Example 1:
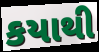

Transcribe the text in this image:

કયાથી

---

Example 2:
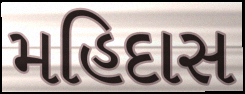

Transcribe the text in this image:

મહિદાસ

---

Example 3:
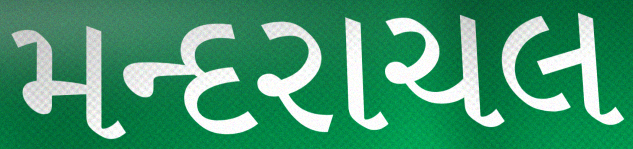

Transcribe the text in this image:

મન્દરાચલ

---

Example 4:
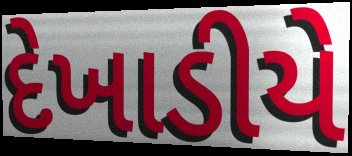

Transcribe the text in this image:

દેખાડીયે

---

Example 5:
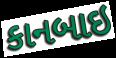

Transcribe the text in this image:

કાનબાઇ